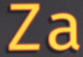
Za